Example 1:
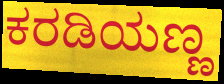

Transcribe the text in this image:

ಕರಡಿಯಣ್ಣ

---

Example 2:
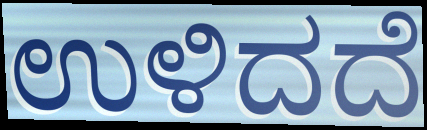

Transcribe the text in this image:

ಉಳಿದದೆ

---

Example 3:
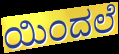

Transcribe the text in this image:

ಯಿಂದಲೆ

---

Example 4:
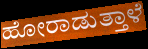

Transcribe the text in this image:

ಹೋರಾಡುತ್ತಾಳೆ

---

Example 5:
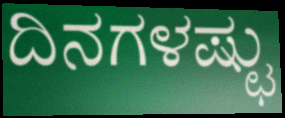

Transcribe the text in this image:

ದಿನಗಳಷ್ಟು